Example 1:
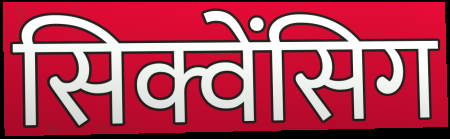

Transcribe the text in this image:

सिक्वेंसिग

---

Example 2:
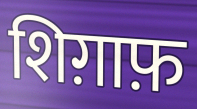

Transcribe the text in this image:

शिग़ाफ़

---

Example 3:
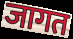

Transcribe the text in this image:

जागत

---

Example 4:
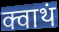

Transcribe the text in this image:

क्वाथं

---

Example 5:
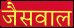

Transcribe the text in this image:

जैसवाल